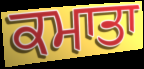
ਕਮਾਤਾ